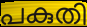
പകുതി